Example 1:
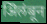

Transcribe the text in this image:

ऄिलंबून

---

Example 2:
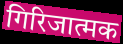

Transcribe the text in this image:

गिरिजात्मक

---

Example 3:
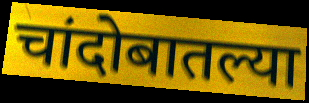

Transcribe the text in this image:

चांदोबातल्या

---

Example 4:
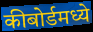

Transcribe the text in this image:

कीबोर्डमध्ये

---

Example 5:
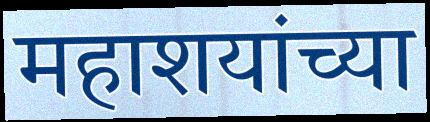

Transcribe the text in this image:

महाशयांच्या